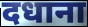
दधाना